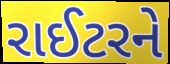
રાઈટરને